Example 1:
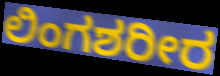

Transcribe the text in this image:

ಲಿಂಗಶರೀರ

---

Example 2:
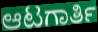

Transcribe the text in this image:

ಆಟಗಾರ್ತಿ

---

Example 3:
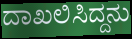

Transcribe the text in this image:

ದಾಖಲಿಸಿದ್ದನು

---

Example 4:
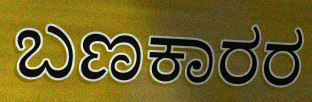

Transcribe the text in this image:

ಬಣಕಾರರ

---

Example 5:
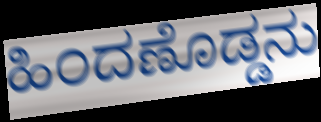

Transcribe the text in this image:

ಹಿಂದಣೊಡ್ಡನು